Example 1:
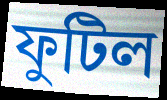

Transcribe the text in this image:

ফুটিল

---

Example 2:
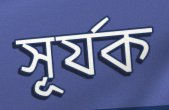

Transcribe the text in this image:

সূৰ্যক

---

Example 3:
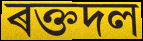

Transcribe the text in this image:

ৰক্তদল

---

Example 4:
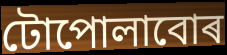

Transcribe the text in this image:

টোপোলাবোৰ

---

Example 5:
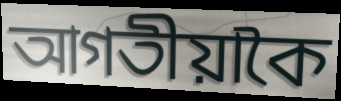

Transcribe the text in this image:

আগতীয়াকৈ